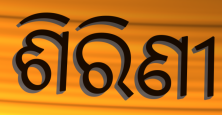
ଶିରିଣୀ